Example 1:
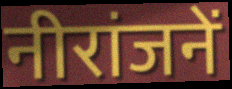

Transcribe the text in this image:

नीरांजनें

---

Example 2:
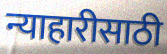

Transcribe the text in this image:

न्याहारीसाठी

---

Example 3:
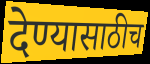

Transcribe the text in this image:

देण्यासाठीच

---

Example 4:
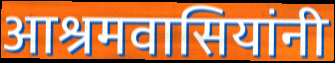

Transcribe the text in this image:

आश्रमवासियांनी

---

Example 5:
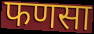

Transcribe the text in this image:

फणसा